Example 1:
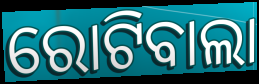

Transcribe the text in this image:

ରୋଟିବାଲା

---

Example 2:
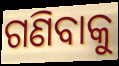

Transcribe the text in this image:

ଗଣିବାକୁ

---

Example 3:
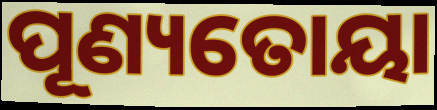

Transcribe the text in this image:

ପୂଣ୍ୟତୋୟା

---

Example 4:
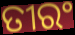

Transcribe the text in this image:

ତୀରଂ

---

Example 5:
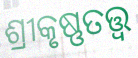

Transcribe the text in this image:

ଶ୍ରୀକୃଷ୍ଣତତ୍ତ୍ଵ